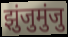
झुंजुमुंजु